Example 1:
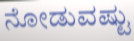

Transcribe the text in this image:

ನೋಡುವಷ್ಟು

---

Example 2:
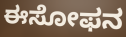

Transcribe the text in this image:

ಈಸೋಫನ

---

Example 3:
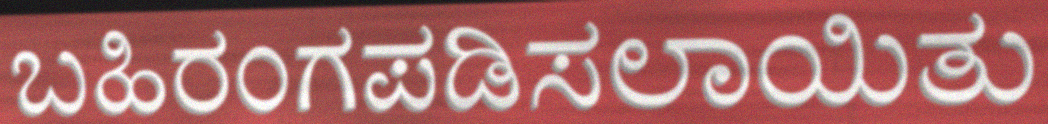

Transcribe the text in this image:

ಬಹಿರಂಗಪಡಿಸಲಾಯಿತು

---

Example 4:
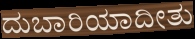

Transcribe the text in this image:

ದುಬಾರಿಯಾದೀತು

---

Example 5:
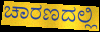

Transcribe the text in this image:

ಚಾರಣದಲ್ಲಿ